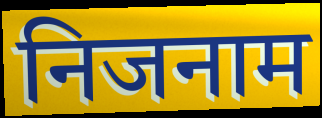
निजनाम